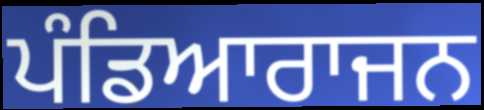
ਪੰਡਿਆਰਾਜਨ